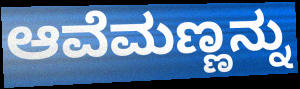
ಆವೆಮಣ್ಣನ್ನು